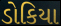
ડોકિયા